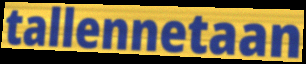
tallennetaan